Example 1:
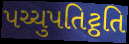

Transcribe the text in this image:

પચ્ચુપતિટ્ઠતિ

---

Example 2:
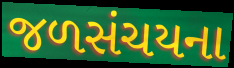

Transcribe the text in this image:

જળસંચયના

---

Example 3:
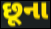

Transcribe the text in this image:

છૂના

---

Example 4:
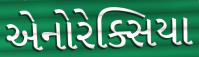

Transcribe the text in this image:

એનોરેક્સિયા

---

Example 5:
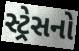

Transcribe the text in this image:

સ્ટ્રેસનો